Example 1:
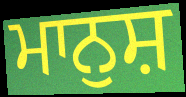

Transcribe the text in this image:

ਮਾਨੁਸ਼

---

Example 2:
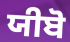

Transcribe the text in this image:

ਯੀਬੋ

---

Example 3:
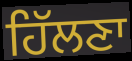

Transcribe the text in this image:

ਹਿੱਲਣਾ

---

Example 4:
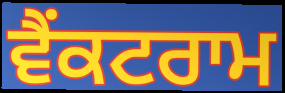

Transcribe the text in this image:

ਵੈਂਕਟਰਾਮ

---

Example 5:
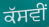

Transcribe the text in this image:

ਕੱਸਵੀਂ